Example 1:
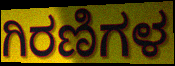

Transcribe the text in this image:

ಗಿರಣಿಗಳ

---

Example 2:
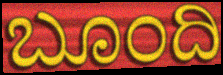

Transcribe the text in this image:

ಬೂಂದಿ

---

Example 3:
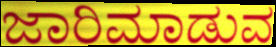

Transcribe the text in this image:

ಜಾರಿಮಾಡುವ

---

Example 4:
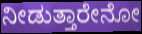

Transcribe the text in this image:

ನೀಡುತ್ತಾರೇನೋ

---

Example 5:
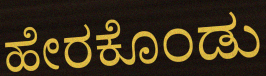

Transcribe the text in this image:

ಹೇರಕೊಂಡು